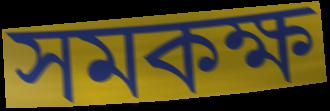
সমকক্ষ